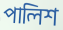
পালিশ